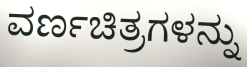
ವರ್ಣಚಿತ್ರಗಳನ್ನು